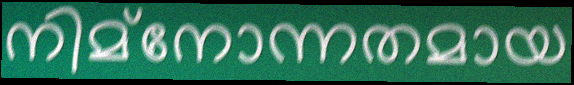
നിമ്നോന്നതമായ